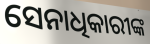
ସେନାଧିକାରୀଙ୍କ